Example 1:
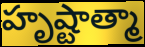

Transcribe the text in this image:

హృష్టాత్మా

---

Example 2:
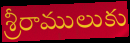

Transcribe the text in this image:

శ్రీరాములుకు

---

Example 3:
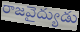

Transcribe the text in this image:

రాజవైద్యుడు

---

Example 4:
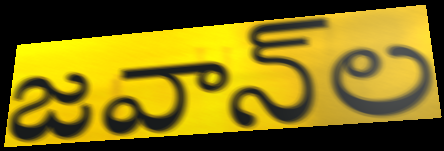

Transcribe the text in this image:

జవాన్‌ల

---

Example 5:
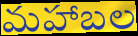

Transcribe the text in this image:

మహాబల